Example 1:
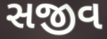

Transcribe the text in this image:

સજીવ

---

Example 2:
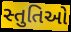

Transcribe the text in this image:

સ્તુતિઓ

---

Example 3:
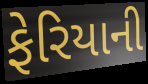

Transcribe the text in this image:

ફેરિયાની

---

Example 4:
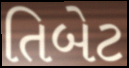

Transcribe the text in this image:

તિબેટ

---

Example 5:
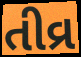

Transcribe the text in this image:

તીવ્ર